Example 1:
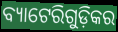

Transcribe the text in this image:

ବ୍ୟାଟେରିଗୁଡ଼ିକର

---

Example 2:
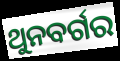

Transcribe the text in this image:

ଥୁନବର୍ଗର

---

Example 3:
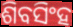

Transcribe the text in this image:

ଶିବସିଂହ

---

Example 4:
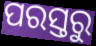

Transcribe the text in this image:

ପରସ୍ତରୁ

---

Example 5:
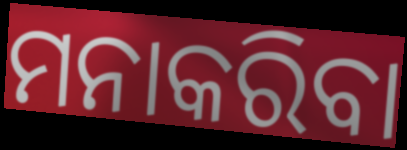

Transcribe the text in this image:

ମନାକରିବା